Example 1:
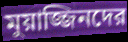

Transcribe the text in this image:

মুয়াজ্জিনদের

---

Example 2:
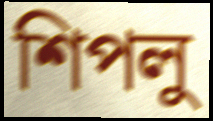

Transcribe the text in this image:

শিপলু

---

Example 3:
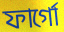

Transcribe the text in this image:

ফার্গো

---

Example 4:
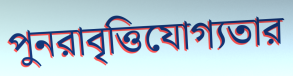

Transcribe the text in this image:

পুনরাবৃত্তিযোগ্যতার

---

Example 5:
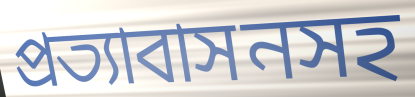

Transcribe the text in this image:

প্রত্যাবাসনসহ